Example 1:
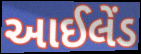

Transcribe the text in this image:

આઈલેંડ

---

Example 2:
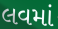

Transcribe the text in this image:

લવમાં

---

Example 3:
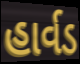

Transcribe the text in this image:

હાર્વડ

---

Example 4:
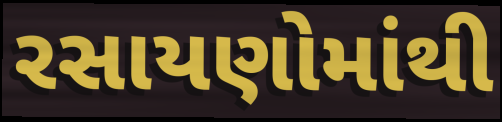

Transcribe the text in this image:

રસાયણોમાંથી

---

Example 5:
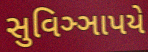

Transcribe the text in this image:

સુવિઞ્ઞાપયે